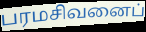
பரமசிவனைப்